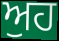
ਅੁਹ